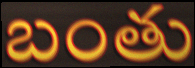
బంతు